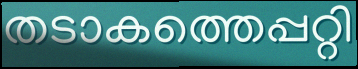
തടാകത്തെപ്പറ്റി